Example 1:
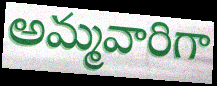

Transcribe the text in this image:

అమ్మవారిగా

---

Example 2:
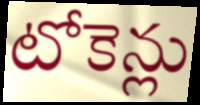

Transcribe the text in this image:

టోకెన్లు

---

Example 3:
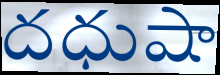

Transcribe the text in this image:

దధుషా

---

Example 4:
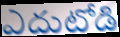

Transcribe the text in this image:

ఎదుటోడి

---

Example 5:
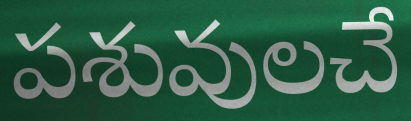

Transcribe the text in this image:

పశువులచే